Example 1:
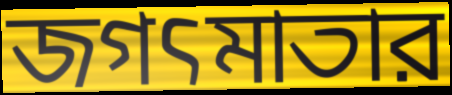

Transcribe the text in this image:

জগৎমাতার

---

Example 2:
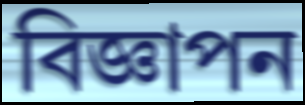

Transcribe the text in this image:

বিজ্ঞাপন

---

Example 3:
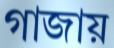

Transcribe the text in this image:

গাজায়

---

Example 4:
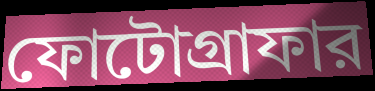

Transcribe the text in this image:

ফোটোগ্রাফার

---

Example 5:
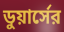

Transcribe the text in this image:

ডুয়ার্সের